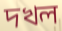
দখল